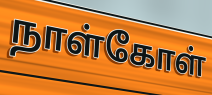
நாள்கோள்